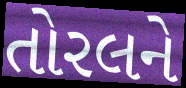
તોરલને